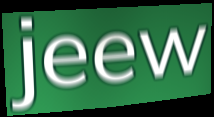
jeew